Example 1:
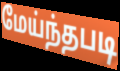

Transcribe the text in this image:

மேய்ந்தபடி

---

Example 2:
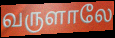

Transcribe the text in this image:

வருளாலே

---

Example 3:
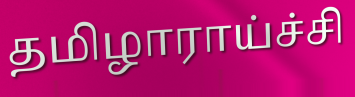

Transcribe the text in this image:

தமிழாராய்ச்சி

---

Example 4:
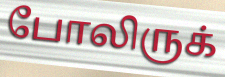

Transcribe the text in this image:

போலிருக்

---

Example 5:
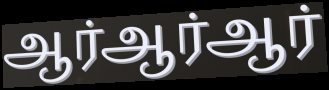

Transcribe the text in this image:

ஆர்ஆர்ஆர்